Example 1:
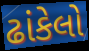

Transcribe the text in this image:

ઢાંકેલો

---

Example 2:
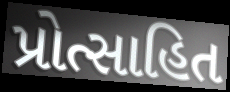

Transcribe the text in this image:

પ્રોત્સાહિત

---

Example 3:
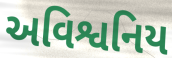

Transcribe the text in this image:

અવિશ્વનિય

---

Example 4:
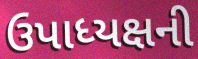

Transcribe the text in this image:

ઉપાધ્યક્ષની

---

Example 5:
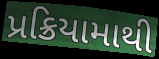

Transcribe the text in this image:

પ્રક્રિયામાથી